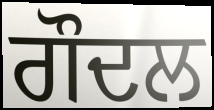
ਗੌਦਲ